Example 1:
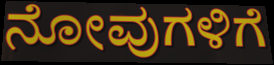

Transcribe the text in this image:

ನೋವುಗಳಿಗೆ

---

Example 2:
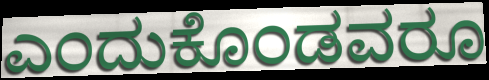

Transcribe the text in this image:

ಎಂದುಕೊಂಡವರೂ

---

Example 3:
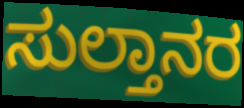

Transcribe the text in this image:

ಸುಲ್ತಾನರ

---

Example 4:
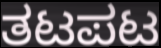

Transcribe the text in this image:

ತಟಪಟ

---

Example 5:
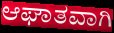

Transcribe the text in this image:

ಆಘಾತವಾಗಿ